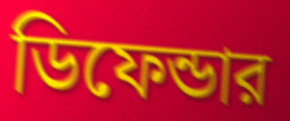
ডিফেন্ডার